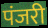
पंजरी